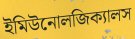
ইমিউনোলজিক্যালস